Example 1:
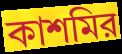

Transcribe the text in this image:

কাশমির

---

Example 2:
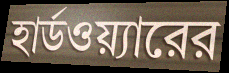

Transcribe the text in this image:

হার্ডওয়্যারের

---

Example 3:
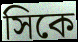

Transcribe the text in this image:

সিকে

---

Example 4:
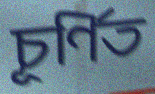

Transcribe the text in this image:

চূর্ণিত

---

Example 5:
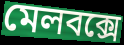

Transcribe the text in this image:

মেলবক্সে